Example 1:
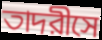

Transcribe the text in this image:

তাদরীসে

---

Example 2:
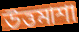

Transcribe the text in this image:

উত্তমাশা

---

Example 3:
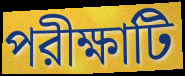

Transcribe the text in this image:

পরীক্ষাটি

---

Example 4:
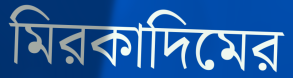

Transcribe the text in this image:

মিরকাদিমের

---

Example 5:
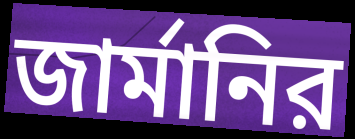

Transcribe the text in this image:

জার্মানির